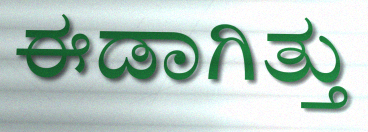
ಈಡಾಗಿತ್ತು